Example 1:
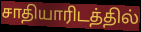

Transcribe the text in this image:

சாதியாரிடத்தில்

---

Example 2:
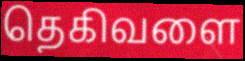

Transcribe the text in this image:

தெகிவளை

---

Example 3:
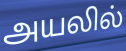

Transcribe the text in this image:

அயலில்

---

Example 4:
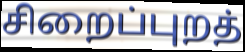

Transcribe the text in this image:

சிறைப்புறத்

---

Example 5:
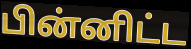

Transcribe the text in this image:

பின்னிட்ட